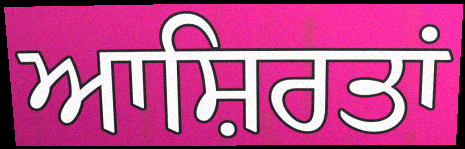
ਆਸ਼ਿਰਤਾਂ